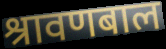
श्रावणबाल